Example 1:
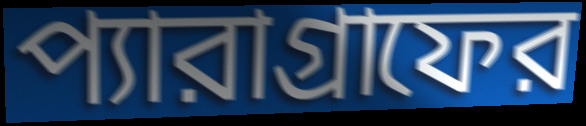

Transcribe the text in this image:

প্যারাগ্রাফের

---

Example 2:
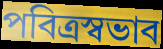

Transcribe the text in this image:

পবিত্রস্বভাব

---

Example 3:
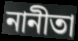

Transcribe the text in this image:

নানীতা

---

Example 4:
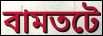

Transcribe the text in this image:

বামতটে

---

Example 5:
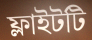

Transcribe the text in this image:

ফ্লাইটটি